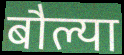
बौल्या